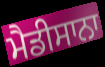
ਮੈਡੀਸਾਨਾ